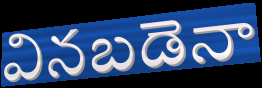
వినబడెనా